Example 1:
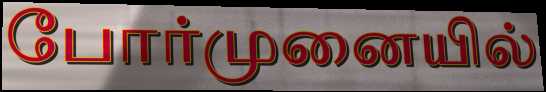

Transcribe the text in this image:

போர்முனையில்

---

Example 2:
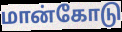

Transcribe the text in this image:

மான்கோடு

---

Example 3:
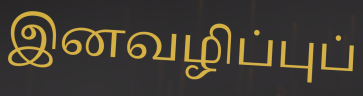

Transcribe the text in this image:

இனவழிப்புப்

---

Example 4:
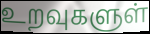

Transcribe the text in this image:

உறவுகளுள்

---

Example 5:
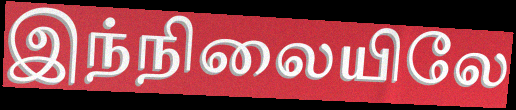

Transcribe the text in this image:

இந்நிலையிலே